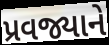
પ્રવજ્યાને